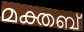
മക്തബ്